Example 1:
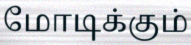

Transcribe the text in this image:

மோடிக்கும்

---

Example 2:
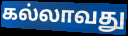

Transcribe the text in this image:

கல்லாவது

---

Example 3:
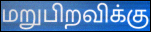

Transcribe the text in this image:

மறுபிறவிக்கு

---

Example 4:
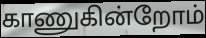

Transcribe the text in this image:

காணுகின்றோம்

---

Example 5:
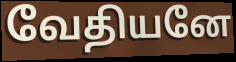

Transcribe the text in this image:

வேதியனே